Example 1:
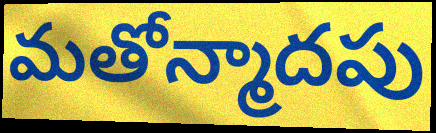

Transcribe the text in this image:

మతోన్మాదపు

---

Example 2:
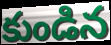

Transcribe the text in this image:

కుండిన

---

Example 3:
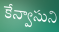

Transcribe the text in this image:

కేన్వాసుని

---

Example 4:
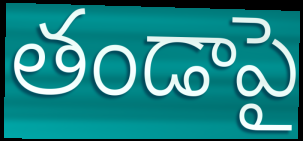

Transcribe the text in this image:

తండాపై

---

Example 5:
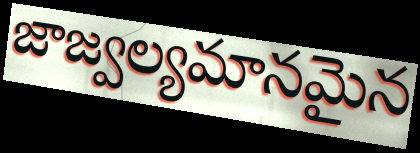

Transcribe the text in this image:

జాజ్వల్యమానమైన